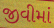
જીવીમાં